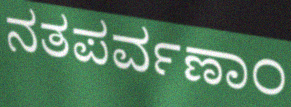
ನತಪರ್ವಣಾಂ